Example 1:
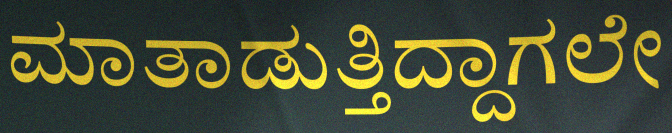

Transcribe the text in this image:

ಮಾತಾಡುತ್ತಿದ್ದಾಗಲೇ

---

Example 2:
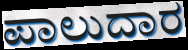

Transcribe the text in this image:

ಪಾಲುದಾರ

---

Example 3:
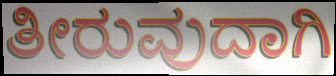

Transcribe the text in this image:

ತೀರುವುದಾಗಿ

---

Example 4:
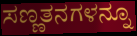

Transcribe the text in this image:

ಸಣ್ಣತನಗಳನ್ನೂ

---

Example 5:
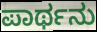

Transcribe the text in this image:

ಪಾರ್ಥನು